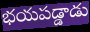
భయపడ్డాడు